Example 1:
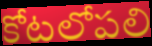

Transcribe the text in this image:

కోటలోపలి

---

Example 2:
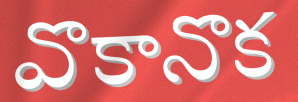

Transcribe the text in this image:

వొకానొక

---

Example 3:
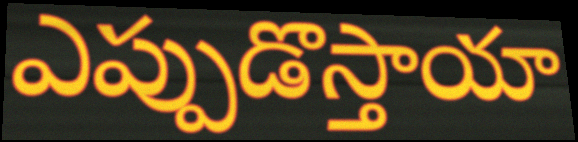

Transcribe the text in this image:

ఎప్పుడొస్తాయా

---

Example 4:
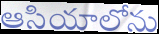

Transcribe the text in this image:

ఆసియాలోను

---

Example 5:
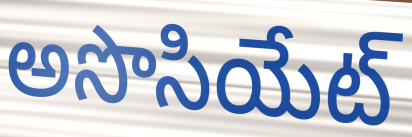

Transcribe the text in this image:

అసొసియేట్